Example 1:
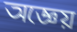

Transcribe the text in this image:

অজ্ঞেয়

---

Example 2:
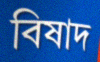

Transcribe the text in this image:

বিষাদ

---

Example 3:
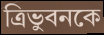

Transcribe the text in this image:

ত্রিভুবনকে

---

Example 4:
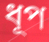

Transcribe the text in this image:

ধূপ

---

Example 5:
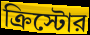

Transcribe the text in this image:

ক্রিস্টোর